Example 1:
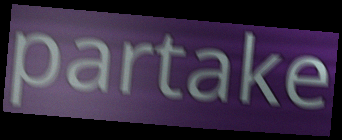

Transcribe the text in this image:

partake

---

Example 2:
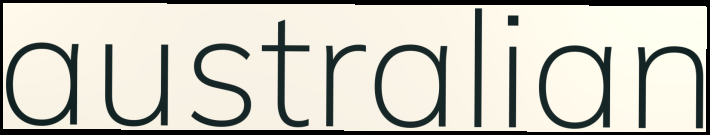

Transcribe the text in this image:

australian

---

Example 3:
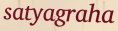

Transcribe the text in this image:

satyagraha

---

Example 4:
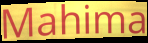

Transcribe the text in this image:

Mahima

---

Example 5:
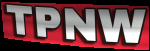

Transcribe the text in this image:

TPNW